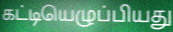
கட்டியெழுப்பியது